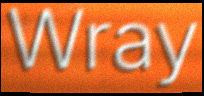
Wray